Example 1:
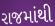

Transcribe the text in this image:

રાજમાંથી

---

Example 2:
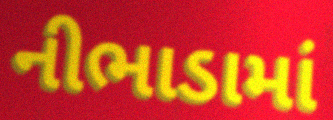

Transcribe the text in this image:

નીભાડામાં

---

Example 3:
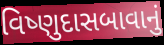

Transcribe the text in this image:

વિષ્ણુદાસબાવાનું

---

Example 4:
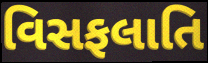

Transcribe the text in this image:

વિસફલાતિ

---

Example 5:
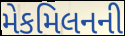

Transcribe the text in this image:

મેકમિલનની